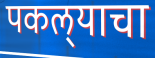
पकल्याचा